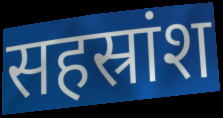
सहस्रांश